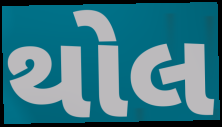
થોલ